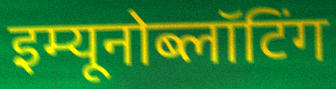
इम्यूनोब्लॉटिंग